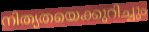
നിത്യതയെക്കുറിച്ചും